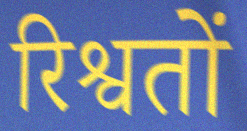
रिश्वतों